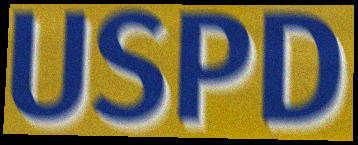
USPD